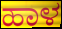
ಹಾಳ